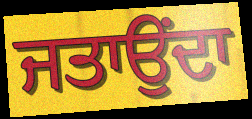
ਜਤਾਉਂਦਾ